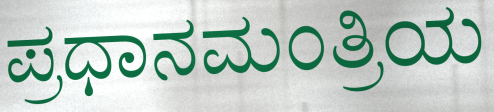
ಪ್ರಧಾನಮಂತ್ರಿಯ